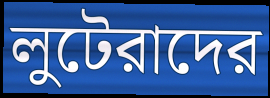
লুটেরাদের